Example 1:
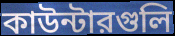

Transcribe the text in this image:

কাউন্টারগুলি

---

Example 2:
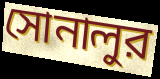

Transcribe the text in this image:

সোনালুর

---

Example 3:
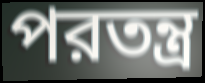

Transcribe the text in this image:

পরতন্ত্র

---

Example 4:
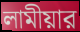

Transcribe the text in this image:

লামীয়ার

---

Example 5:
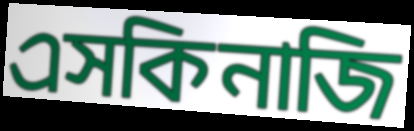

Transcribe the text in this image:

এসকিনাজি